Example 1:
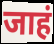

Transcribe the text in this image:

जाहं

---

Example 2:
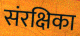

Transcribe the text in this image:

संरक्षिका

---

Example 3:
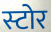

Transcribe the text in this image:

स्‍टोर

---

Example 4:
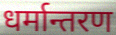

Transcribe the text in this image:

धर्मान्तरण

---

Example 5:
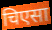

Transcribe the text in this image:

चिएसा